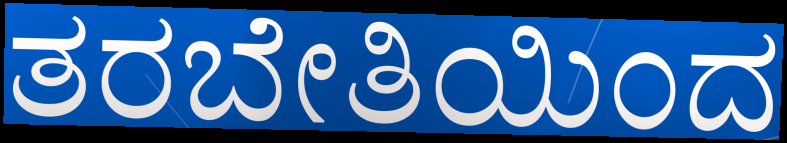
ತರಬೇತಿಯಿಂದ